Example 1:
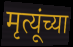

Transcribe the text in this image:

मृत्यूंच्या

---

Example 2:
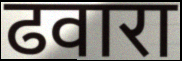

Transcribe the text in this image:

ढवारा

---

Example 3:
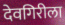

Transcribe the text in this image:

देवगिरीला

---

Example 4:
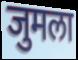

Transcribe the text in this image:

जुमला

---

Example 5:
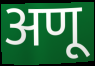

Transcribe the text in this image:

अणू